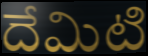
దేమిటి